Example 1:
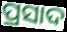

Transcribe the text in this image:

ପ୍ରସାଦ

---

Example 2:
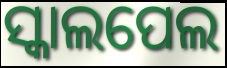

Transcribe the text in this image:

ସ୍କାଲପେଲ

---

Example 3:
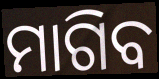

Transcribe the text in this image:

ମାଗିବ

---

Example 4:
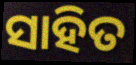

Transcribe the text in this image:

ସାହିତ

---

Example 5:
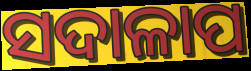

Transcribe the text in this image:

ସଦାଳାପ